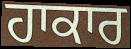
ਹਾਕਾਰ